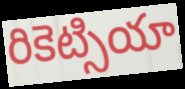
రికెట్సియా